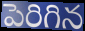
పెరిగిన